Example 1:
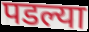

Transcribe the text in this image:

पडल्या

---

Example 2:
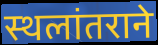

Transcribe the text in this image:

स्थलांतराने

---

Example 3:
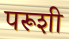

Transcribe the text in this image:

परूशी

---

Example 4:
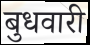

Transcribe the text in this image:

बुधवारी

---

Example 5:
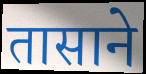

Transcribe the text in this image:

तासाने